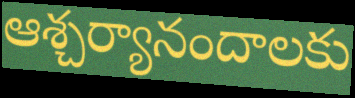
ఆశ్చర్యానందాలకు